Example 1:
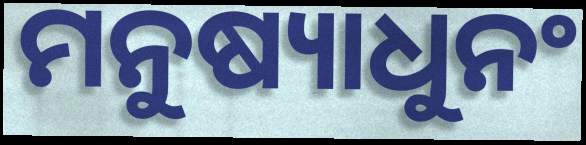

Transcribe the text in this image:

ମନୁଷ୍ୟାଧୁନଂ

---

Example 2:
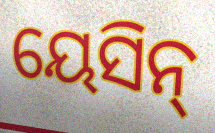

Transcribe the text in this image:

ୟେସିନ୍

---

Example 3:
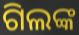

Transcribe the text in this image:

ଗିଲଙ୍କ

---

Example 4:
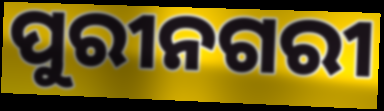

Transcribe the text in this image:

ପୁରୀନଗରୀ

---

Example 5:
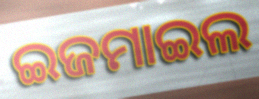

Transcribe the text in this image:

ଇଜମାଇଲ